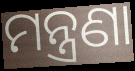
ମନ୍ତ୍ରଣା